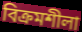
বিক্ৰমশীলা